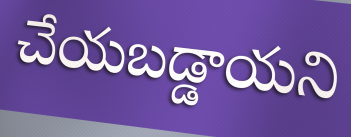
చేయబడ్డాయని